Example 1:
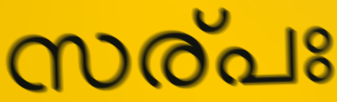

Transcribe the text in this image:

സര്പഃ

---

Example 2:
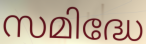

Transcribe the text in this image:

സമിദ്ധേ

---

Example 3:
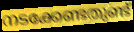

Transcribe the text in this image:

നടക്കേണ്ടതുണ്ട്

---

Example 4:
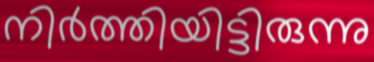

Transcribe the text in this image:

നിർത്തിയിട്ടിരുന്നു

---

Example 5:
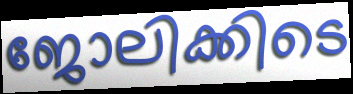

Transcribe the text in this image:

ജോലിക്കിടെ